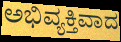
ಅಭಿವ್ಯಕ್ತಿವಾದ